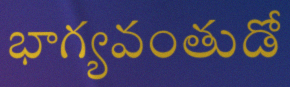
భాగ్యవంతుడో